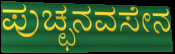
ಪುಚ್ಛನವಸೇನ